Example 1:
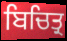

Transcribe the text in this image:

ਬਿਚਿਤ੍ਰ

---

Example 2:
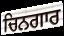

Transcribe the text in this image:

ਚਿਨਗਾਰ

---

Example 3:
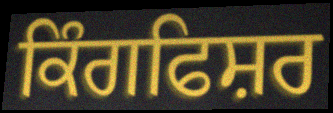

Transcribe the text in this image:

ਕਿੰਗਫਿਸ਼ਰ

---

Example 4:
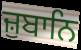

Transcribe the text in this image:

ਜ਼ੁਬਾਨਿ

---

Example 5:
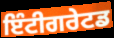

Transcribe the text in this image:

ਇੰਟੀਗਰੇਟਡ